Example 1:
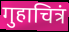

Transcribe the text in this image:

गुहाचित्रं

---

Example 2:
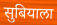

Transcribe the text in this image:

सुबियाला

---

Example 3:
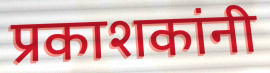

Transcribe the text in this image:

प्रकाशकांनी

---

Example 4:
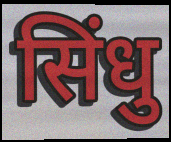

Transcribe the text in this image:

सिंधु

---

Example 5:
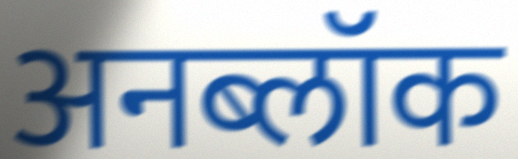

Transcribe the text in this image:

अनब्लॉक